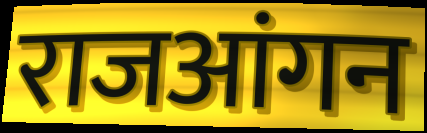
राजआंगन